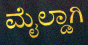
ಮೈಲ್ಡಾಗಿ